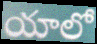
యాలో